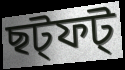
ছট্‌ফট্